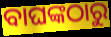
ବାଘଙ୍କଠାରୁ